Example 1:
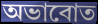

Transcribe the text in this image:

অভাবোত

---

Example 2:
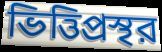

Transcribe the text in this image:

ভিত্তিপ্রস্থর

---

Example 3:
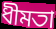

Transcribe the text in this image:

ধীমতা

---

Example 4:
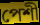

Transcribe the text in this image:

পেশী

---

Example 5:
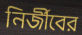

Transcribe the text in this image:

নির্জীবের